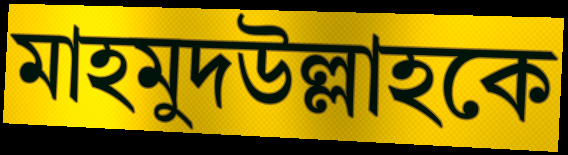
মাহমুদউল্লাহকে